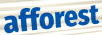
afforest